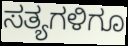
ಸತ್ಯಗಳಿಗೂ